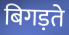
बिगड़ते